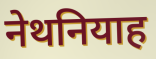
नेथनियाह